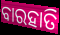
ବାରହାତି